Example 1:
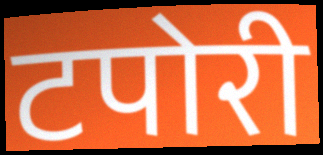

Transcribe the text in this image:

टपोरी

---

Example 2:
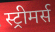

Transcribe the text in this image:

स्ट्रीमर्स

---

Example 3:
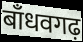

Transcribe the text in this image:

बाँधवगढ़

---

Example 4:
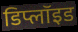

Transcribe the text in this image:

डिप्लॉइड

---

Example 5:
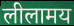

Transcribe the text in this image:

लीलामय